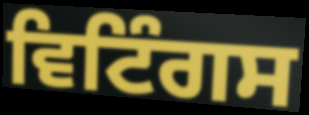
ਵਿਟਿੰਗਸ